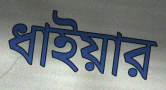
ধাইয়ার